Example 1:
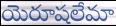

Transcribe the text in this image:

యెరూషలేమా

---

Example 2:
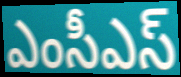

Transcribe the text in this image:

ఎంసీఎస్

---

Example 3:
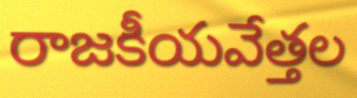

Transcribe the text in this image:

రాజకీయవేత్తల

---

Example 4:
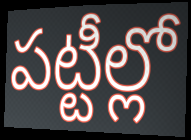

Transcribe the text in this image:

పట్టీల్లో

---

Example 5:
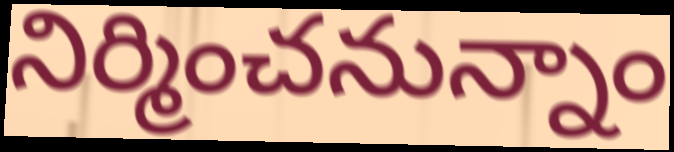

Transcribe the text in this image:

నిర్మించనున్నాం